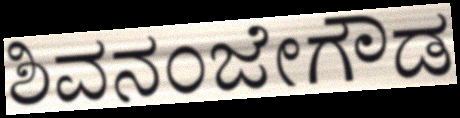
ಶಿವನಂಜೇಗೌಡ